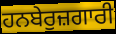
ਹਨਬੇਰੁਜ਼ਗਾਰੀ